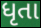
ધૃતા